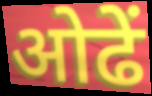
ओढें